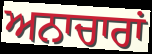
ਅਨਾਚਾਰਾਂ